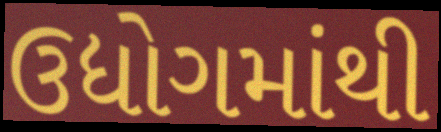
ઉદ્યોગમાંથી